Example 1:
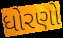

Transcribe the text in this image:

ધોરણો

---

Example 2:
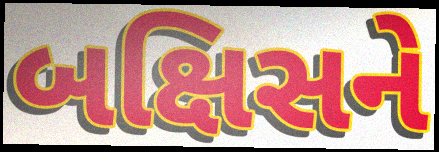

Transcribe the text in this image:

બક્ષિસને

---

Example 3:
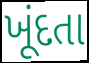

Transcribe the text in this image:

ખૂંદતા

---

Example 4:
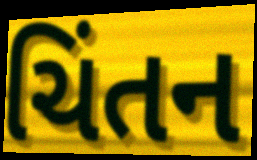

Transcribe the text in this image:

ચિંતન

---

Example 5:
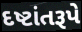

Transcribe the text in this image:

દષ્ટાંતરૂપે